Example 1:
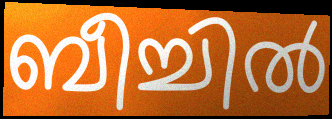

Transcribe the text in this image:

ബീച്ചിൽ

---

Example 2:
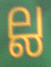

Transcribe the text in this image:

ല്ല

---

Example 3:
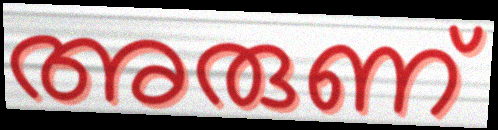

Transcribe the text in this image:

അരുണ്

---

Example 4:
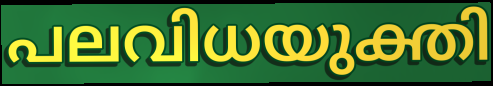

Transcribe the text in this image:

പലവിധയുക്തി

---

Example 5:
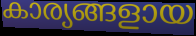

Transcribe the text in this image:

കാര്യങ്ങളായ